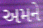
અમને